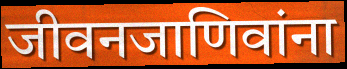
जीवनजाणिवांना